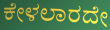
ಕೇಳಲಾರದೇ